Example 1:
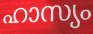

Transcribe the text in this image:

ഹാസ്യം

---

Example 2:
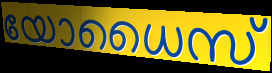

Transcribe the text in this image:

യോധൈസ്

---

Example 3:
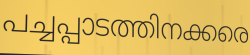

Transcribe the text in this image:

പച്ചപ്പാടത്തിനക്കരെ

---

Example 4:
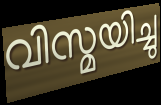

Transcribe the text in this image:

വിസ്മയിച്ചു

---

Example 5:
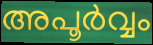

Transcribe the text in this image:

അപൂർവ്വം